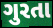
ગુરતા